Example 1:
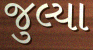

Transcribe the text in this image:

જુલ્યા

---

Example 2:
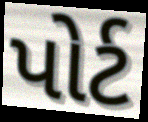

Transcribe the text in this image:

પોર્ટ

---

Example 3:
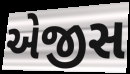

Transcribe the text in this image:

એજીસ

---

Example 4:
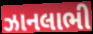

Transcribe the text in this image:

ઝાનલાભી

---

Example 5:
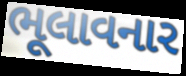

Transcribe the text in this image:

ભૂલાવનાર